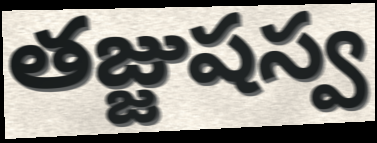
తజ్జుషస్వ